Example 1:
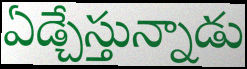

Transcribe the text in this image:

ఏడ్చేస్తున్నాడు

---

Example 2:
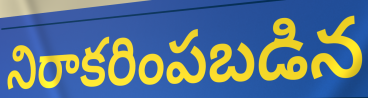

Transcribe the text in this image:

నిరాకరింపబడిన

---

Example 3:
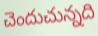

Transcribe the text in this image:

చెందుచున్నది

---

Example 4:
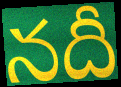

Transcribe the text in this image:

నదీ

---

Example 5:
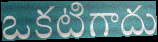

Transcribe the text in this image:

ఒకటిగాదు